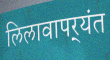
लिलावापर्यंत